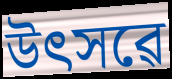
উৎসৱে